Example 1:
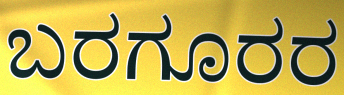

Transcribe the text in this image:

ಬರಗೂರರ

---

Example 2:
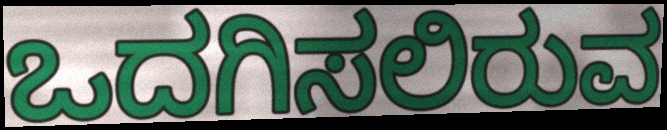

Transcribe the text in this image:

ಒದಗಿಸಲಿರುವ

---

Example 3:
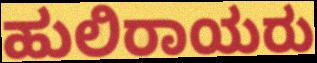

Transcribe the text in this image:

ಹುಲಿರಾಯರು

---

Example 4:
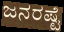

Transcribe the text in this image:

ಜನರಷ್ಟೆ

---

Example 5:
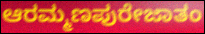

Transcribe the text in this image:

ಆರಮ್ಮಣಪುರೇಜಾತಂ